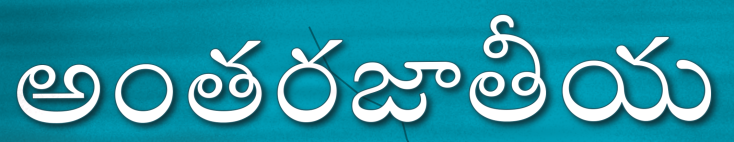
అంతరజాతీయ